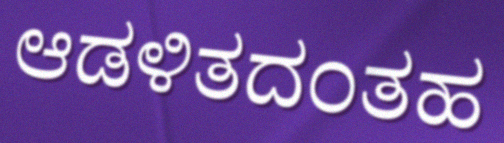
ಆಡಳಿತದಂತಹ